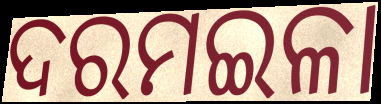
ଦରମଇଳା